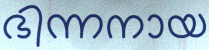
ഭിന്നനായ